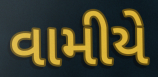
વામીયે